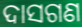
ଦାସଗଣ